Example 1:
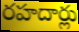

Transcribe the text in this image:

రహదార్లు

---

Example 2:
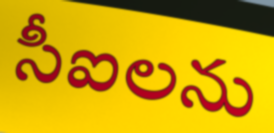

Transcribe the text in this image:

సీఐలను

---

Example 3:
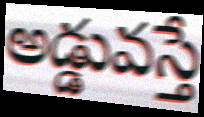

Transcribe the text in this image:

అడ్డువస్తే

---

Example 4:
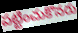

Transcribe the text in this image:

పట్టించుకొనరు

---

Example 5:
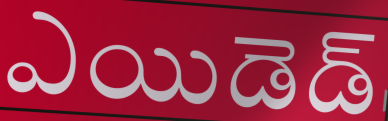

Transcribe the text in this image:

ఎయిడెడ్